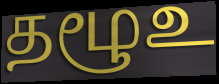
தழூஉ